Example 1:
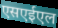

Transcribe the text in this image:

एसएईएल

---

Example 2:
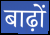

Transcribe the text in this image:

बाढ़ों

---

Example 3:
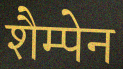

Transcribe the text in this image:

शैम्पेन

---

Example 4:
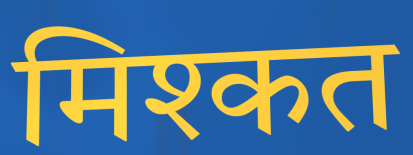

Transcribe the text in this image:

मिश्कत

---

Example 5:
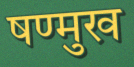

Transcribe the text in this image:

षण्मुख